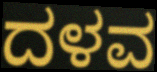
ದಳವ